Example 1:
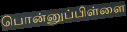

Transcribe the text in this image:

பொன்னுப்பிள்ளை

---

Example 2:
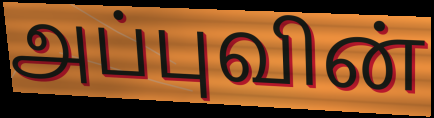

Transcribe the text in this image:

அப்புவின்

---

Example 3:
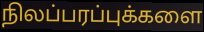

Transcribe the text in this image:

நிலப்பரப்புக்களை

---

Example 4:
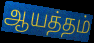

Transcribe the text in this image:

ஆயத்தம்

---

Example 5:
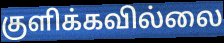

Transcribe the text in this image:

குளிக்கவில்லை